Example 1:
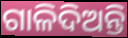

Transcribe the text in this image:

ଗାଳିଦିଅନ୍ତି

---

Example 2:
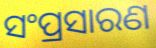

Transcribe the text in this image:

ସଂପ୍ରସାରଣ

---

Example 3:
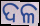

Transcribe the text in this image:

ଦଳ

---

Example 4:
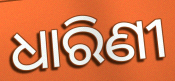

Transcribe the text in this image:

ଧାରିଣୀ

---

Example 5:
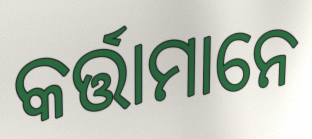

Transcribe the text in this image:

କର୍ତ୍ତାମାନେ